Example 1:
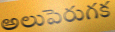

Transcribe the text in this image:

అలుపెరుగక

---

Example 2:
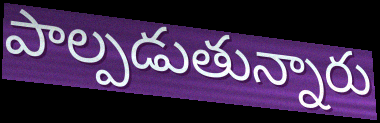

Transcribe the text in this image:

పాల్పడుతున్నారు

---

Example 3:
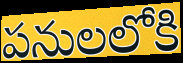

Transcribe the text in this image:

పనులలోకి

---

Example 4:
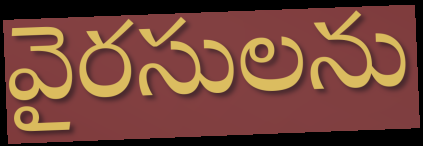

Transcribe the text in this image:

వైరసులను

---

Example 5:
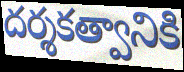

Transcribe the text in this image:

దర్శకత్వానికి